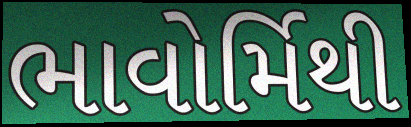
ભાવોર્મિથી